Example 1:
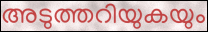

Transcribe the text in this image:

അടുത്തറിയുകയും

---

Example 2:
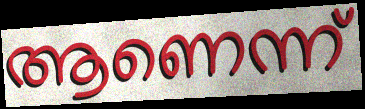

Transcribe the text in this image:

ആണെന്ന്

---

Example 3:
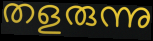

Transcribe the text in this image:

തളരുന്നു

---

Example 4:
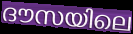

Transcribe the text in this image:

ദൗസയിലെ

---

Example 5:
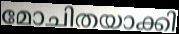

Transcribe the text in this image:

മോചിതയാക്കി